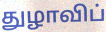
துழாவிப்